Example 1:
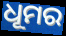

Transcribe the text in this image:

ଧୂମର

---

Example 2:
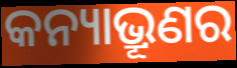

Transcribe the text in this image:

କନ୍ୟାଭ୍ରୂଣର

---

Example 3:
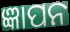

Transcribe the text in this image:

ଜ୍ଞାପନ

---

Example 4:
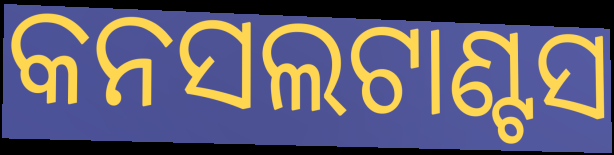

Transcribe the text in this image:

କନସଲଟାଣ୍ଟସ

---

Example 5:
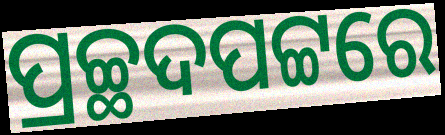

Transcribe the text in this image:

ପ୍ରଚ୍ଛଦପଟ୍ଟରେ